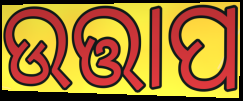
ଉତ୍ତାପ